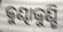
କୁଣ୍ଢାକୁଣ୍ଡି